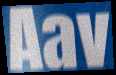
Aav